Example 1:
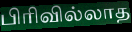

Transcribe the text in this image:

பிரிவில்லாத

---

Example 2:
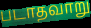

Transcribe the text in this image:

படாதவாறு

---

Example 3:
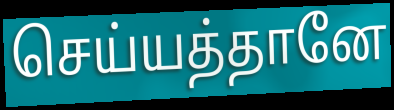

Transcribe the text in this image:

செய்யத்தானே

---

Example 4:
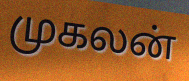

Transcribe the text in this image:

முகலன்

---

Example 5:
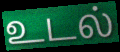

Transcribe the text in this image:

உடல்